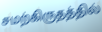
சமற்கிருதத்தில்